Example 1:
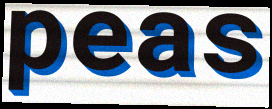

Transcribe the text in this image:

peas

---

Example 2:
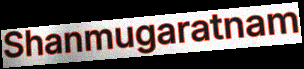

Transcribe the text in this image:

Shanmugaratnam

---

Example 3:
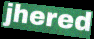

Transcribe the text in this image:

jhered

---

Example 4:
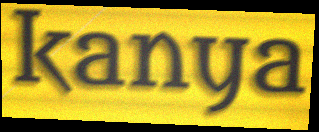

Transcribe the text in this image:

kanya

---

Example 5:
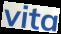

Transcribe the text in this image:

vita